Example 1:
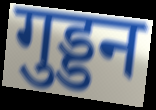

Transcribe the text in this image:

गुड्डन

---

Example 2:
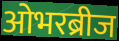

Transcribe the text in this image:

ओभरब्रीज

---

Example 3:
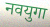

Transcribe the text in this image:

नवयुगा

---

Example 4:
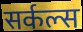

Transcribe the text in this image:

सर्कल्स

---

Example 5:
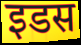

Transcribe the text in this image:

इडस